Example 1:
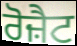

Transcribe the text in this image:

ਰੋਜ਼ੈਟ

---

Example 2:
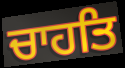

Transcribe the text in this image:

ਚਾਹਤਿ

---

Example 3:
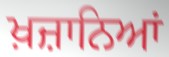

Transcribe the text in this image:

ਖ਼ਜ਼ਾਨਿਆਂ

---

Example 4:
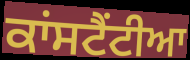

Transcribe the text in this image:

ਕਾਂਸਟੈਂਟੀਆ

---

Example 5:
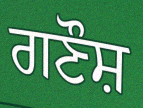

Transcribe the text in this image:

ਗਣੌਸ਼